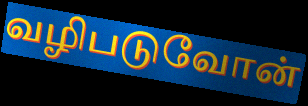
வழிபடுவோன்